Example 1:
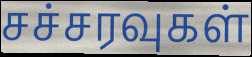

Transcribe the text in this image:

சச்சரவுகள்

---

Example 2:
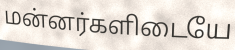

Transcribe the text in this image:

மன்னர்களிடையே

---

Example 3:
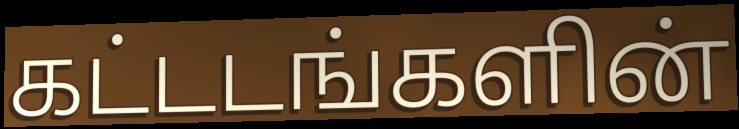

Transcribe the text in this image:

கட்டடங்களின்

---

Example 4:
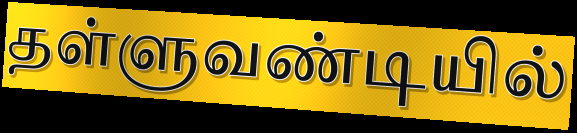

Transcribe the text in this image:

தள்ளுவண்டியில்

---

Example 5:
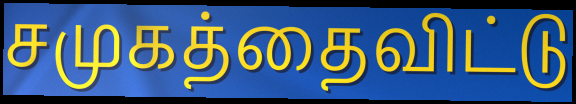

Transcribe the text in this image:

சமுகத்தைவிட்டு